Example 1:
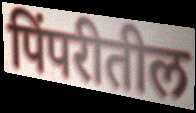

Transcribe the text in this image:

पिंपरीतील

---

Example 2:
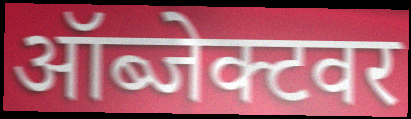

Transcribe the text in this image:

ऑब्जेक्टवर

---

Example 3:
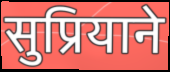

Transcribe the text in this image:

सुप्रियाने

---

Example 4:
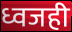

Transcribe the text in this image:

ध्वजही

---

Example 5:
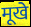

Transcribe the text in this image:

मूखे